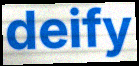
deify